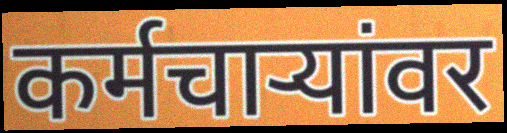
कर्मचार्‍यांवर